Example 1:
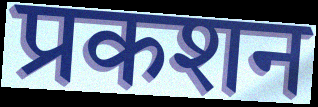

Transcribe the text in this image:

प्रकशन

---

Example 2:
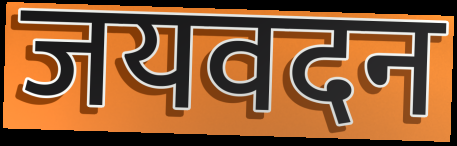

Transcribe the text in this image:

जयवदन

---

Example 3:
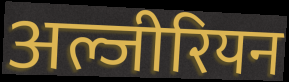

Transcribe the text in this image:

अल्जीरियन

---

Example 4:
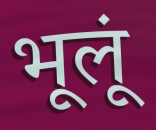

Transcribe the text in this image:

भूलूं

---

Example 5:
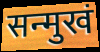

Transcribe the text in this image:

सन्मुखं